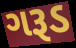
ગરૂડ